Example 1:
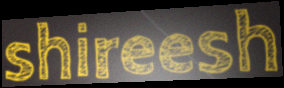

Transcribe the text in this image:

shireesh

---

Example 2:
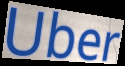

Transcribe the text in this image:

Uber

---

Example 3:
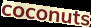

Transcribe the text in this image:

coconuts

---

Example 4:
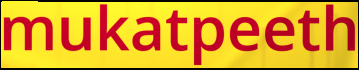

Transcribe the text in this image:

mukatpeeth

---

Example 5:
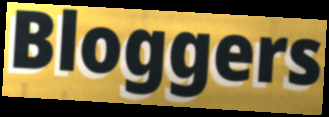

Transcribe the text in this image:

Bloggers